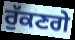
ਰੁੱਕਣਗੇ